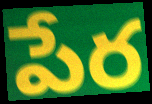
పేర